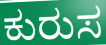
ಕುರುಸ